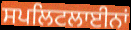
ਸਪਲਿਟਲਾਈਨਾਂ